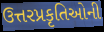
ઉત્તરપ્રકૃતિઓની